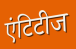
एंटिटीज